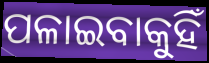
ପଳାଇବାକୁହିଁ